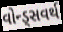
વોન્ડ્સવર્થ